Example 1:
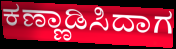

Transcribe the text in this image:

ಕಣ್ಣಾಡಿಸಿದಾಗ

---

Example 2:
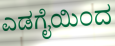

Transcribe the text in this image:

ಎಡಗೈಯಿಂದ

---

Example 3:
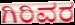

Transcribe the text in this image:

ಗಿರಿವರ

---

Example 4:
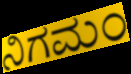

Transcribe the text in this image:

ನಿಗಮಂ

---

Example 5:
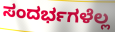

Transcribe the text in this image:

ಸಂದರ್ಭಗಳೆಲ್ಲ